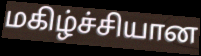
மகிழ்ச்சியான